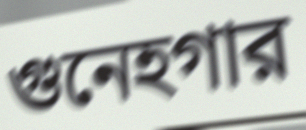
গুনেহগার